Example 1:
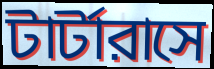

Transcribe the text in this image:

টার্টারাসে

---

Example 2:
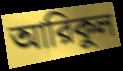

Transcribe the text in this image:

আরিকুল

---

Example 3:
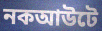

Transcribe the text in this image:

নকআউটে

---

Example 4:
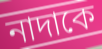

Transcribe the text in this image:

নাদাকে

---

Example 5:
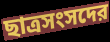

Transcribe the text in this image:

ছাত্রসংসদের